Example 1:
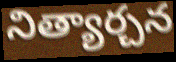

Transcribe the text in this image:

నిత్యార్చన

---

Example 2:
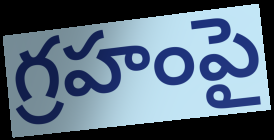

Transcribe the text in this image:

గ్రహంపై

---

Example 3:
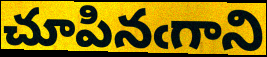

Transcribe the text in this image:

చూపినఁగాని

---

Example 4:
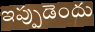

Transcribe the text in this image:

ఇప్పుడెందు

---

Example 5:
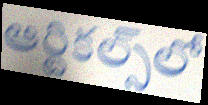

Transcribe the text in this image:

ఆర్టికల్స్‌లో